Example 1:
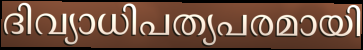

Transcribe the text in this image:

ദിവ്യാധിപത്യപരമായി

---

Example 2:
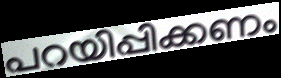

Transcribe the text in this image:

പറയിപ്പിക്കണം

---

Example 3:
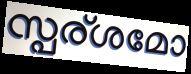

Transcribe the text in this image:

സ്പര്ശമോ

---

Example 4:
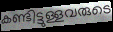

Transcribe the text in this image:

കണ്ടിട്ടുള്ളവരുടെ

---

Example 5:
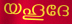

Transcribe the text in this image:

യഹൂദേ